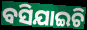
ବସିଯାଇଚି